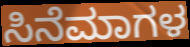
ಸಿನೆಮಾಗಳ